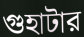
গুহাটার